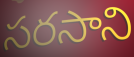
సరసాని